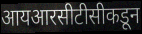
आयआरसीटीसीकडून